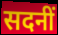
सदनीं